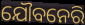
ଯୌବନେରି